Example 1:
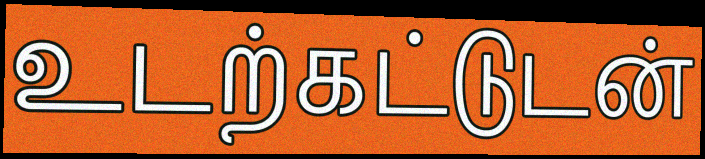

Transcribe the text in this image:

உடற்கட்டுடன்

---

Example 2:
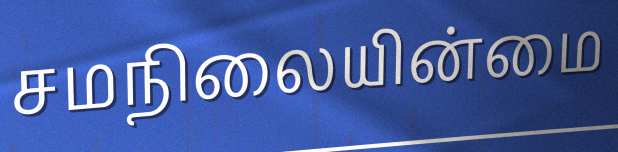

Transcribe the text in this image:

சமநிலையின்மை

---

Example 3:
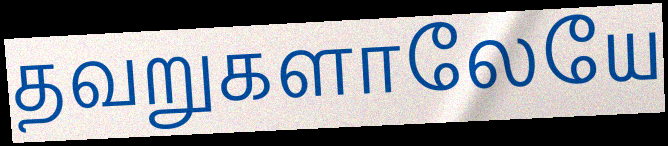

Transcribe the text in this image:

தவறுகளாலேயே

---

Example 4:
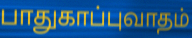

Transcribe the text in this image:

பாதுகாப்புவாதம்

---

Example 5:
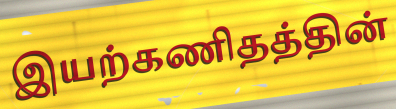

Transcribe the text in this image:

இயற்கணிதத்தின்